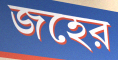
জহের